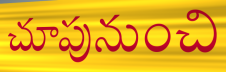
చూపునుంచి